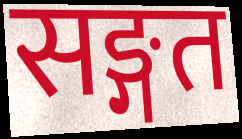
सङ्गत